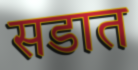
सडात